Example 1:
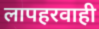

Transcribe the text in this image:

लापहरवाही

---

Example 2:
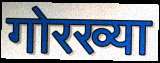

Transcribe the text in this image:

गोरख्या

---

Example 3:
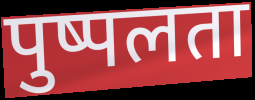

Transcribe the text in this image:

पुष्पलता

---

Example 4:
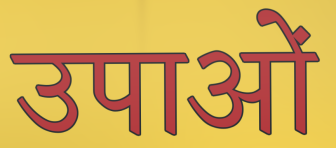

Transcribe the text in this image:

उपाओं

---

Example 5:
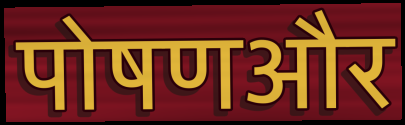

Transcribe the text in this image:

पोषणऔर